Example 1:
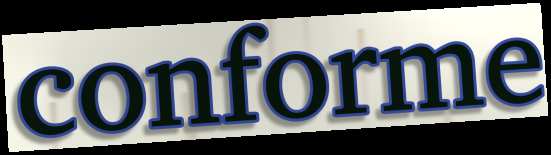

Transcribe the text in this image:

conforme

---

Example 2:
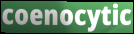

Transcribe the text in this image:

coenocytic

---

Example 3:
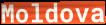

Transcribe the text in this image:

Moldova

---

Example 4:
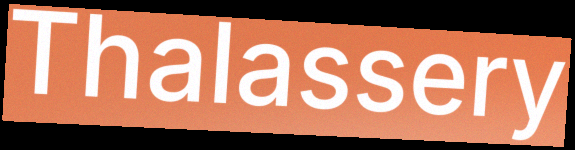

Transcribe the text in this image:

Thalassery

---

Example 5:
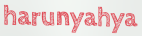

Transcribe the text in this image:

harunyahya